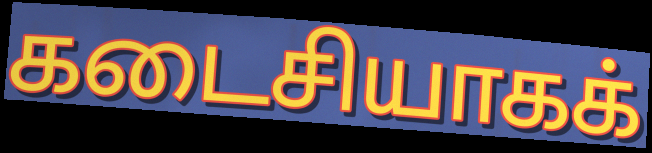
கடைசியாகக்